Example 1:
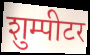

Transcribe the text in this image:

शुम्पीटर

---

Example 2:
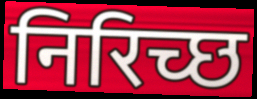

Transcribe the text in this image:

निरिच्छ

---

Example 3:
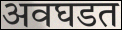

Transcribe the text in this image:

अवघडत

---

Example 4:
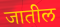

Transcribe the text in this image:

जातील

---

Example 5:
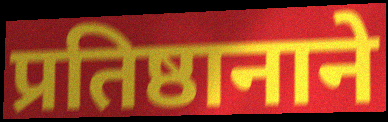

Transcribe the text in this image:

प्रतिष्ठानाने